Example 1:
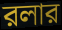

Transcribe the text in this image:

রলার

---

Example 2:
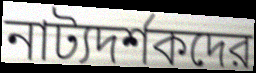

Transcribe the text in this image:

নাট্যদর্শকদের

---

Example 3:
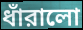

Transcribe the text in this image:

ধাঁরালো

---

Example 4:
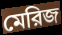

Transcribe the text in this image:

মেরিজ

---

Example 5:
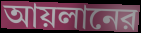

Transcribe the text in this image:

আয়লানের